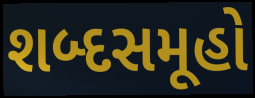
શબ્દસમૂહો